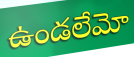
ఉండలేమో